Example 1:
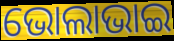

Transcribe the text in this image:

ଭୋଲାଭାଇ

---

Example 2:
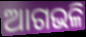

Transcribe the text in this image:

ଆଗଭଳି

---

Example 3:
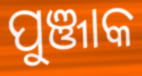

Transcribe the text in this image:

ପୁଞ୍ଜାକ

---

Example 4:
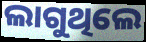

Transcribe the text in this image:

ଲାଗୁଥିଲେ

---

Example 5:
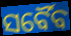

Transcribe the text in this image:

ସର୍ବୈବ